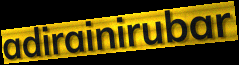
adirainirubar